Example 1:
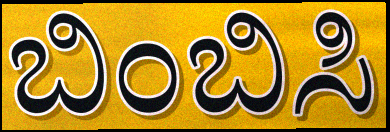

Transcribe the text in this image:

ಬಿಂಬಿಸಿ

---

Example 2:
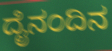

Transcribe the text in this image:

ದೈನಂದಿನ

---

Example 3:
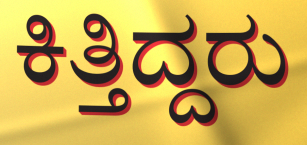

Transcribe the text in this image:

ಕಿತ್ತಿದ್ದರು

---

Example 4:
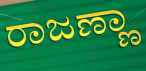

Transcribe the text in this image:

ರಾಜಣ್ಣಾ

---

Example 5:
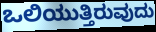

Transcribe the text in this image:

ಒಲಿಯುತ್ತಿರುವುದು